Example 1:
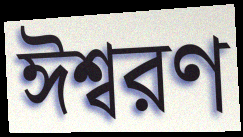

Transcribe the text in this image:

ঈশ্বরণ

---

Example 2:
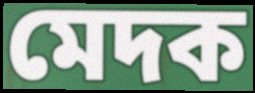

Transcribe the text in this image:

মেদক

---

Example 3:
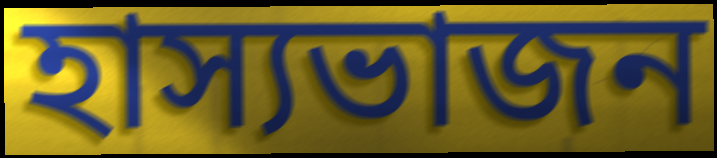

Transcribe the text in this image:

হাস্যভাজন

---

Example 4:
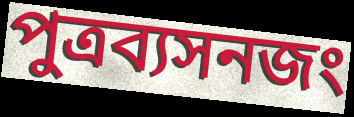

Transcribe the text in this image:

পুত্রব্যসনজং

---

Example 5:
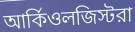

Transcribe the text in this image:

আর্কিওলজিস্টরা